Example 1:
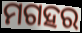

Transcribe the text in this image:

ମଗହର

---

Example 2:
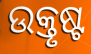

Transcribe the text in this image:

ଉକ୍ତୃଷ୍ଟ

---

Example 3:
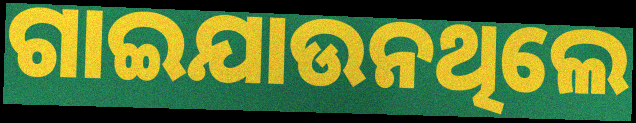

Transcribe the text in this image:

ଗାଇଯାଉନଥିଲେ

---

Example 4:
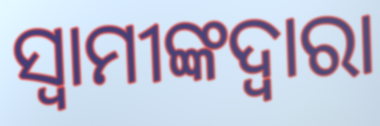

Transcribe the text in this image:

ସ୍ୱାମୀଙ୍କଦ୍ୱାରା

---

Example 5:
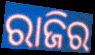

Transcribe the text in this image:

ରାଜିର